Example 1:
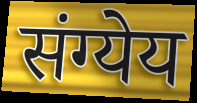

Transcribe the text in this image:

संग्येय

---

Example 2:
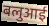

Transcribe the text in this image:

बलुआई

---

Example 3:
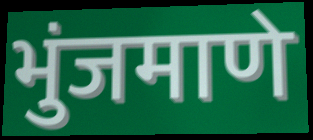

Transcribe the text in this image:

भुंजमाणे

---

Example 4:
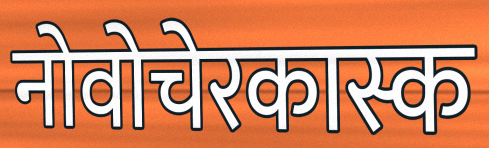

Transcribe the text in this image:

नोवोचेरकास्क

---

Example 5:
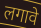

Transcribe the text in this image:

लगावे